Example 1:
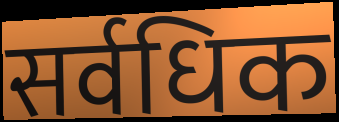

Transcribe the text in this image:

सर्वधिक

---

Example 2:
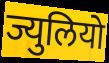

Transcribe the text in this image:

ज्युलियो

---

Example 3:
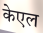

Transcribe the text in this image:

केएल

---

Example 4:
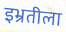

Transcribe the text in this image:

इभ्रतीला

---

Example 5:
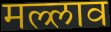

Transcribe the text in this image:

मल्लाव